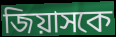
জিয়াসকে